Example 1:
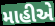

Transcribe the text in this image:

માહીએ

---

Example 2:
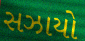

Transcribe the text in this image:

સઝાયો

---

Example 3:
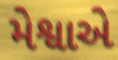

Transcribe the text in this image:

મેશ્વાએ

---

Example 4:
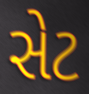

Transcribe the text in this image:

સેટ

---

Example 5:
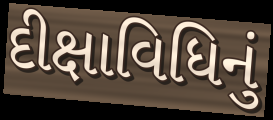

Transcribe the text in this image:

દીક્ષાવિધિનું